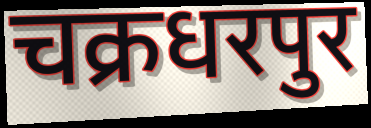
चक्रधरपुर